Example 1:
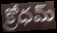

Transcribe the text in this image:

క్రోధమ్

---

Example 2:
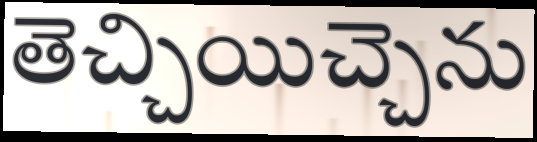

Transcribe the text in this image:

తెచ్చియిచ్చెను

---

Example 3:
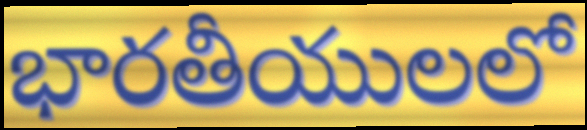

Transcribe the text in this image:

భారతీయులలో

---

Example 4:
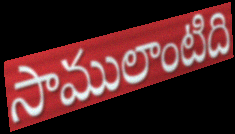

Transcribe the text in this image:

సాములాంటిది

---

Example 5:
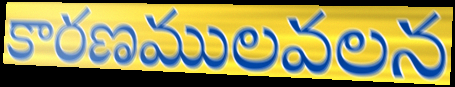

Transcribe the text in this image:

కారణములవలన